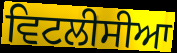
ਵਿਟਲੀਸੀਆ